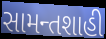
સામન્તશાહી